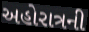
અહોરાત્રની